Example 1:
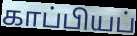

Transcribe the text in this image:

காப்பியப்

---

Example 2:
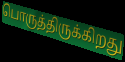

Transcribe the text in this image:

பொருத்திருக்கிறது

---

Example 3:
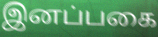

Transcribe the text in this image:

இனப்பகை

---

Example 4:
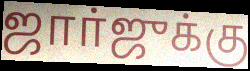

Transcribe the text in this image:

ஜார்ஜுக்கு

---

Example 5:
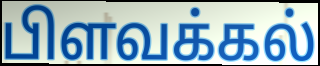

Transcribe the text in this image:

பிளவக்கல்